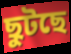
ছুটছে